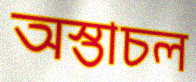
অস্তাচল